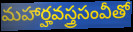
మహార్హవస్త్రసంవీతో